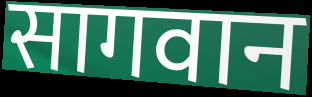
सागवान